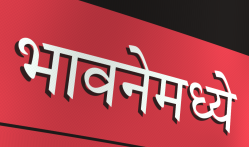
भावनेमध्ये